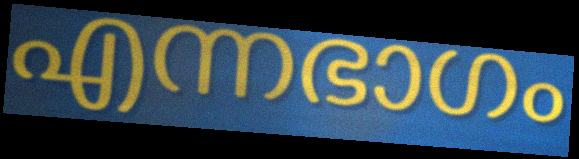
എന്നഭാഗം